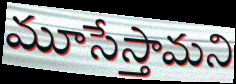
మూసేస్తామని